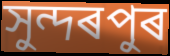
সুন্দৰপুৰ